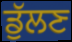
ਡੁੱਲਣ